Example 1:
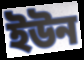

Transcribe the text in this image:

ইউন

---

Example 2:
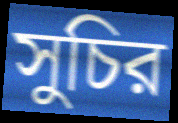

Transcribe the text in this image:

সুচির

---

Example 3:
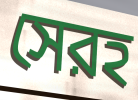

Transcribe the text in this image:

সেরহ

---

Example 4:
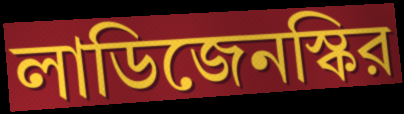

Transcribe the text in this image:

লাডিজেনস্কির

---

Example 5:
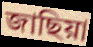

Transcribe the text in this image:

জাছিয়া